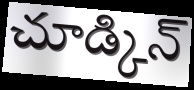
చూడ్కిన్